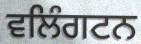
ਵਲਿੰਗਟਨ